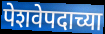
पेशवेपदाच्या